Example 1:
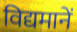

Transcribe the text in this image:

विद्यमानें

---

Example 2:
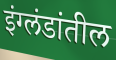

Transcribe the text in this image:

इंग्लंडांतील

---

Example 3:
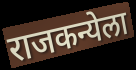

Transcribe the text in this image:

राजकन्येला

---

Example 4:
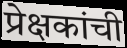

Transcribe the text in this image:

प्रेक्षकांची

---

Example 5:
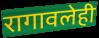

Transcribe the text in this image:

रागावलेही